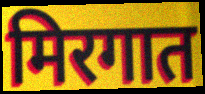
मिरगात